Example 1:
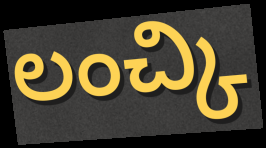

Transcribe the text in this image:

లంచ్కి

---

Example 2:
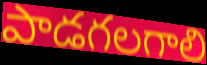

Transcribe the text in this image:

పాడగలగాలి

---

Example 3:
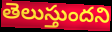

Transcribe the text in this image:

తెలుస్తుందని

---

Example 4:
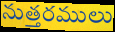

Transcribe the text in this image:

నుత్తరములు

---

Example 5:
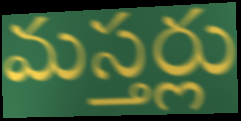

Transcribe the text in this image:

మస్తర్లు